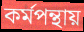
কর্মপন্থায়